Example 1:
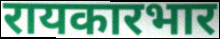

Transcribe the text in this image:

रायकारभार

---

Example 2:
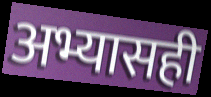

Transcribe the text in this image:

अभ्यासही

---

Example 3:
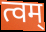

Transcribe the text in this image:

त्वम्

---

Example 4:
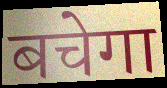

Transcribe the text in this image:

बचेगा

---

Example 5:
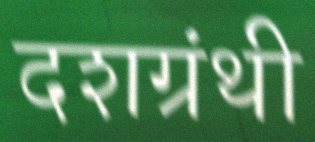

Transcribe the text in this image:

दशग्रंथी